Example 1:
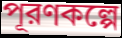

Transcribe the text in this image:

পূরণকল্পে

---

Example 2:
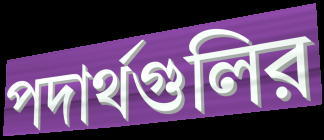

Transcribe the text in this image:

পদার্থগুলির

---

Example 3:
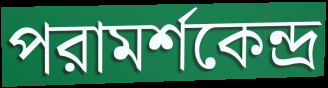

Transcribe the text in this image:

পরামর্শকেন্দ্র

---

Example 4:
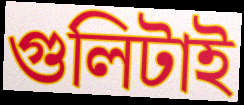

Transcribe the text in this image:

গুলিটাই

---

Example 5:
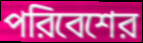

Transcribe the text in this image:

পরিবেশের